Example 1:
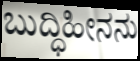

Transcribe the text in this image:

ಬುದ್ಧಿಹೀನನು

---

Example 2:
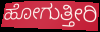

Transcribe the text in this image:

ಹೋಗುತ್ತೀರಿ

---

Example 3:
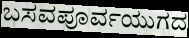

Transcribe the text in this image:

ಬಸವಪೂರ್ವಯುಗದ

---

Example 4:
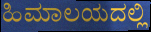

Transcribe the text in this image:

ಹಿಮಾಲಯದಲ್ಲಿ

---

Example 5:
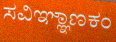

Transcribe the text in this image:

ಸವಿಞ್ಞಾಣಕಂ